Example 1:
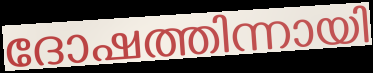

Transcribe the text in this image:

ദോഷത്തിന്നായി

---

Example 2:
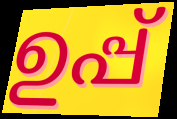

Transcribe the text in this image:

ഉപ്പ്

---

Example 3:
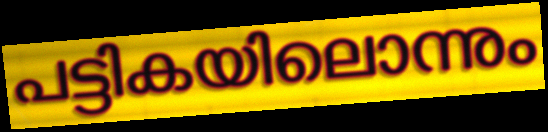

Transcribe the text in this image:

പട്ടികയിലൊന്നും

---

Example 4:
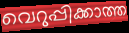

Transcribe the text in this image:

വെറുപ്പിക്കാത്ത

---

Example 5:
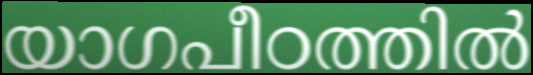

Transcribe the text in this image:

യാഗപീഠത്തിൽ